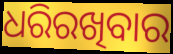
ଧରିରଖିବାର